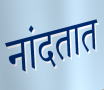
नांदतात